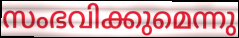
സംഭവിക്കുമെന്നു